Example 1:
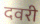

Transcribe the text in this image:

दवरी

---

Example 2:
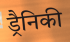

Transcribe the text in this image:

ड्रैनिकी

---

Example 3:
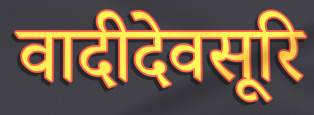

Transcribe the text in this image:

वादीदेवसूरि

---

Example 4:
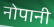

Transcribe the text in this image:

नोपानी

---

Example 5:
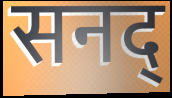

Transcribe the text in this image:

सनद्